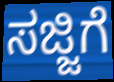
ಸಜ್ಜಿಗೆ